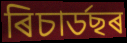
ৰিচাৰ্ডছৰ